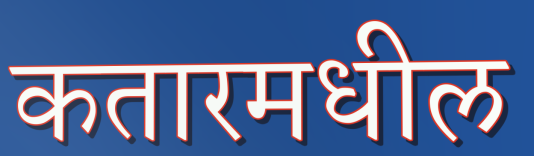
कतारमधील